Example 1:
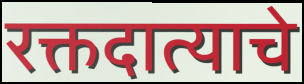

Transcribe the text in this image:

रक्तदात्याचे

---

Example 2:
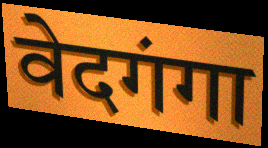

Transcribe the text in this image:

वेदगंगा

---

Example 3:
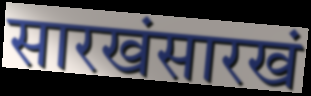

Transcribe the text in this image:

सारखंसारखं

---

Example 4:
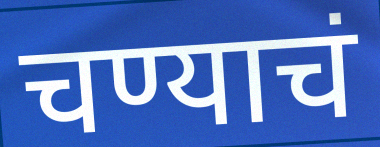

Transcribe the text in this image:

चण्याचं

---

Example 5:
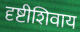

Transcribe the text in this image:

दृष्टीशिवाय